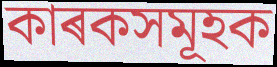
কাৰকসমূহক